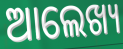
ଆଲେଖ୍ୟ